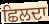
ਛਿਲਦਾ